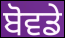
ਬੋਵਡੇ